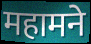
महामने